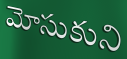
మోసుకుని